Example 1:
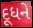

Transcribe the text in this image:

દૂધને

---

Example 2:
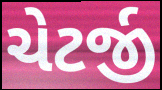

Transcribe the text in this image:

ચેટર્જી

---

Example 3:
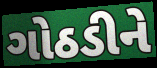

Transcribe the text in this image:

ગોઠડીને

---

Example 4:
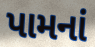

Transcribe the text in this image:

પામનાં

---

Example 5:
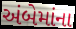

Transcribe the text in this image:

અંબેમાંના